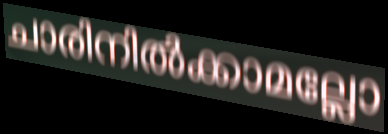
ചാരിനിൽക്കാമല്ലോ